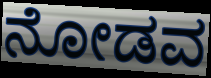
ನೋಡವ